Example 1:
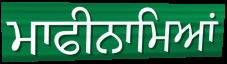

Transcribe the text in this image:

ਮਾਫੀਨਾਮਿਆਂ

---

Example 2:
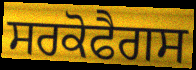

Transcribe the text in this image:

ਸਰਕੋਫੈਗਸ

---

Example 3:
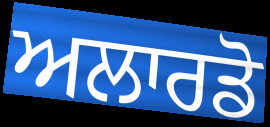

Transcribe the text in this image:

ਅਲਾਰਡੋ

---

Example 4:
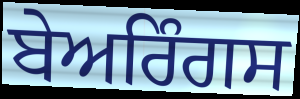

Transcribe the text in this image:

ਬੇਅਰਿੰਗਸ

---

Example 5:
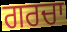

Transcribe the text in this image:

ਗਰਚਾ